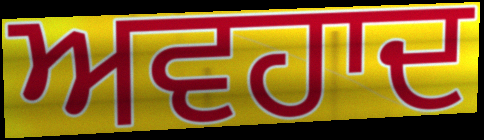
ਅਵਹਾਦ